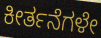
ಕೀರ್ತನೆಗಳೇ